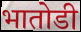
भातोडी